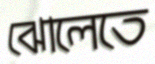
ঝোলেতে